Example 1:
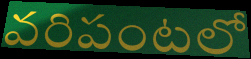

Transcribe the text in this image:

వరిపంటలో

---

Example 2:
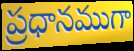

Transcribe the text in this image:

ప్రధానముగా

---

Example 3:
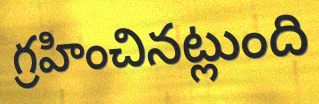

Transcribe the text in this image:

గ్రహించినట్లుంది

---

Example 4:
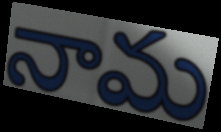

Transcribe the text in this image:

నామ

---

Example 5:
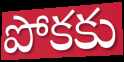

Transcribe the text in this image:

పోకకు